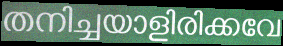
തനിച്ചയാളിരിക്കവേ